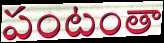
పంటంతా